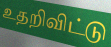
உதறிவிட்டு